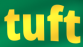
tuft